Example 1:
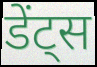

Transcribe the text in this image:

डेंट्स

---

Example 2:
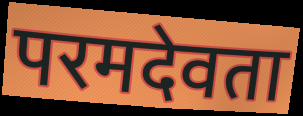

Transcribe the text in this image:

परमदेवता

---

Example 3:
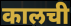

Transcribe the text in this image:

कालची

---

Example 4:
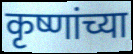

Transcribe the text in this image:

कृष्णांच्या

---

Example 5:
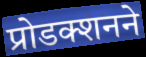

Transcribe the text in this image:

प्रोडक्शनने